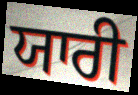
ਯਾਰੀ